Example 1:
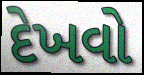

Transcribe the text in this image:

દેખવો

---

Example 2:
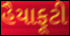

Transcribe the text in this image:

હૈયાફૂટી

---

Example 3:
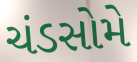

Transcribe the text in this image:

ચંડસોમે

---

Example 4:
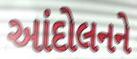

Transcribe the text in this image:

આંદોલનને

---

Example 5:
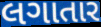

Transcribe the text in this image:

લગાતાર